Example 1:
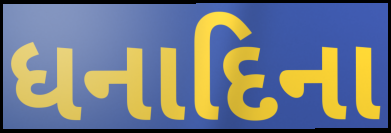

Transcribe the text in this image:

ધનાદિના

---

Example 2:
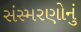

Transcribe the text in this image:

સંસ્મરણોનું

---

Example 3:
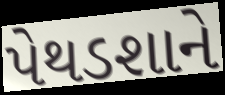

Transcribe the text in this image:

પેથડશાને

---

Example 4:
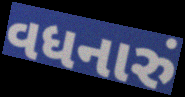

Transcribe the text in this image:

વધનારું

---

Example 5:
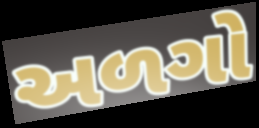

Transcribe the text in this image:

અળગો